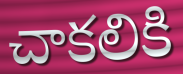
చాకలికి